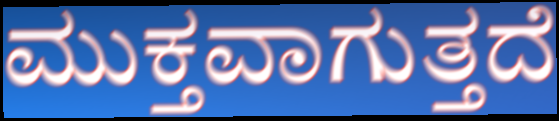
ಮುಕ್ತವಾಗುತ್ತದೆ